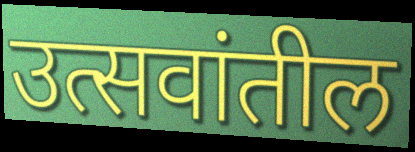
उत्सवांतील